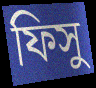
ফিসু